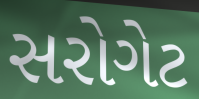
સરોગેટ